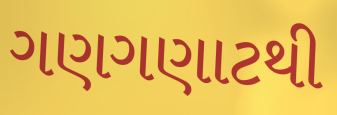
ગણગણાટથી